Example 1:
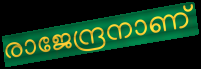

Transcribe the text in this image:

രാജേന്ദ്രനാണ്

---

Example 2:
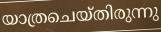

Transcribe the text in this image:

യാത്രചെയ്തിരുന്നു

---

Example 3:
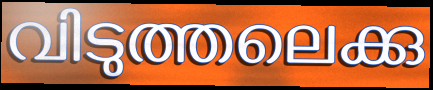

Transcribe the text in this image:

വിടുത്തലെക്കു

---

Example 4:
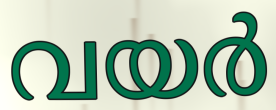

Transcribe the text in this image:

വയർ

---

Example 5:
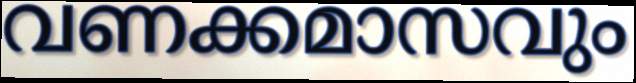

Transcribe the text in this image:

വണക്കമാസവും